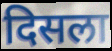
दिसला